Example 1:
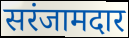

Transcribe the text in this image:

सरंजामदार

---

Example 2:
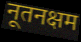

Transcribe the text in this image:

नूतनक्षम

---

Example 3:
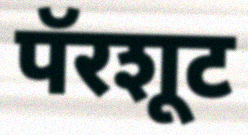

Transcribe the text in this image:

पॅरशूट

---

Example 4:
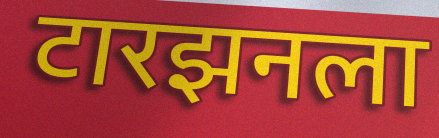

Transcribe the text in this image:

टारझनला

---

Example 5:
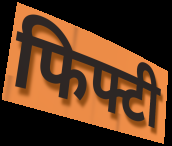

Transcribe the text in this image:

फिफ्टी